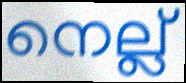
നെല്ല്